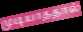
முடியாததால்